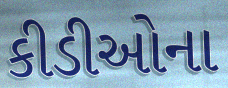
કીડીઓના